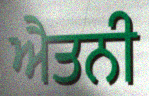
ਐਤਨੀ